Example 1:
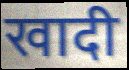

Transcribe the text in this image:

खादी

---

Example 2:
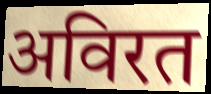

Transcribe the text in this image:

अविरत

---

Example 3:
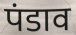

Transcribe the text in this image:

पंडाव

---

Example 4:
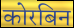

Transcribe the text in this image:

कोरबिन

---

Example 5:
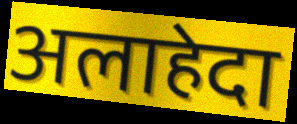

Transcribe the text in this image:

अलाहेदा